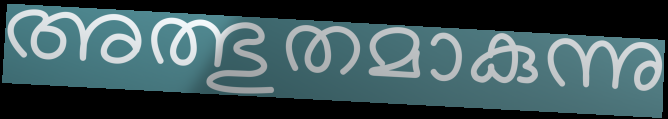
അത്ഭുതമാകുന്നു